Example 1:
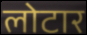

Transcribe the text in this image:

लोटार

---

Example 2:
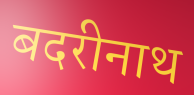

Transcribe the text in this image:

बदरीनाथ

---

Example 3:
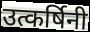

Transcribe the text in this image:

उत्कर्षिनी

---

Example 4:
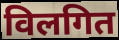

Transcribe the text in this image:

विलगित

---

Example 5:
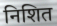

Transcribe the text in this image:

निशित